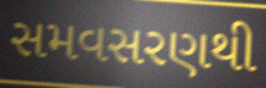
સમવસરણથી